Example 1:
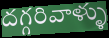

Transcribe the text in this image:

దగ్గరివాళ్ళు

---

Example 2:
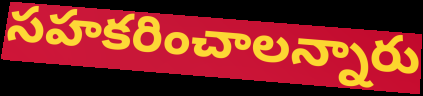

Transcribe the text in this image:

సహకరించాలన్నారు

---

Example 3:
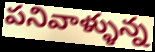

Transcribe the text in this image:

పనివాళ్ళున్న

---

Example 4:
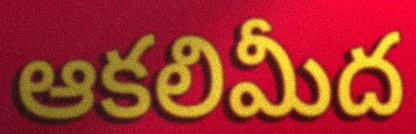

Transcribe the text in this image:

ఆకలిమీద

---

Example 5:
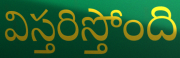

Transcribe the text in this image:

విస్తరిస్తోంది